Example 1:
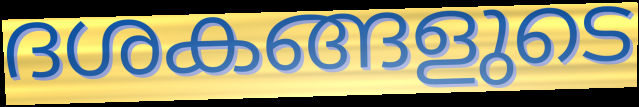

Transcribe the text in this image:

ദശകങ്ങളുടെ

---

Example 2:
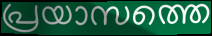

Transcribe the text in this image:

പ്രയാസത്തെ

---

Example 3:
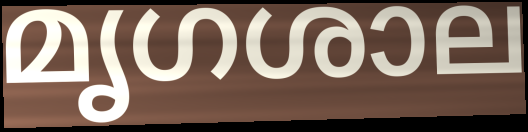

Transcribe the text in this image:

മൃഗശാല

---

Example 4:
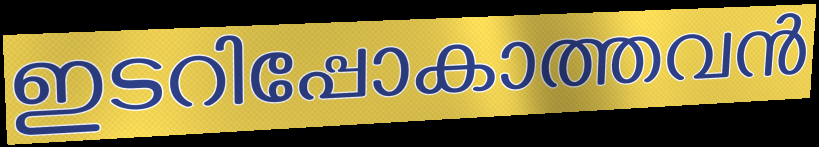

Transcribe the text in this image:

ഇടറിപ്പോകാത്തവൻ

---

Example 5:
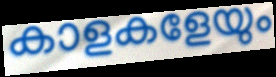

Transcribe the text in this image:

കാളകളേയും